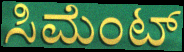
ಸಿಮೆಂಟ್